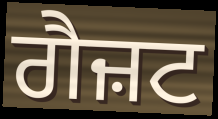
ਗੈਜ਼ਟ